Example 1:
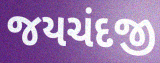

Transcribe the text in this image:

જયચંદજી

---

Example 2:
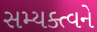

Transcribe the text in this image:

સમ્યક્ત્વને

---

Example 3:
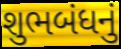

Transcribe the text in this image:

શુભબંધનું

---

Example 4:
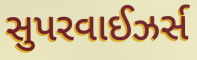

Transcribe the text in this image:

સુપરવાઈઝર્સ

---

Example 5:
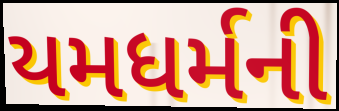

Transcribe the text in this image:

યમધર્મની